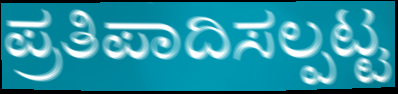
ಪ್ರತಿಪಾದಿಸಲ್ಪಟ್ಟ